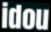
idou